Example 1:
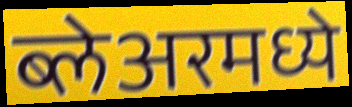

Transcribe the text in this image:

ब्लेअरमध्ये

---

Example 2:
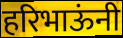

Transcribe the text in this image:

हरिभाऊंनी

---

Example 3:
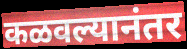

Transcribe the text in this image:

कळवल्यानंतर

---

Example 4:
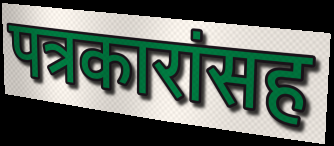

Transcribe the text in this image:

पत्रकारांसह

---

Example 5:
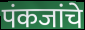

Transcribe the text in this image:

पंकजांचे